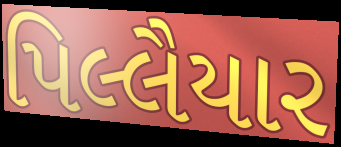
પિલ્લૈયાર